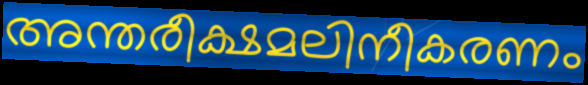
അന്തരീക്ഷമലിനീകരണം